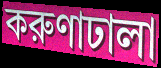
করুণাঢালা